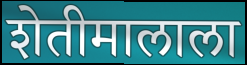
शेतीमालाला